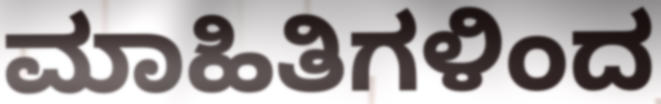
ಮಾಹಿತಿಗಳಿಂದ